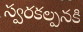
స్వరకల్పనకి